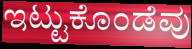
ಇಟ್ಟುಕೊಂಡೆವು